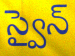
స్వైన్